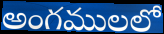
అంగములలో